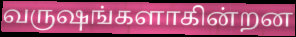
வருஷங்களாகின்றன